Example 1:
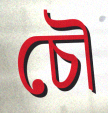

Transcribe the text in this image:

চৌ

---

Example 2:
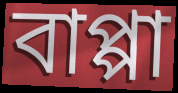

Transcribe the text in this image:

বাপ্পা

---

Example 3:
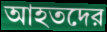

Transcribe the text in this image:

আহতদের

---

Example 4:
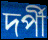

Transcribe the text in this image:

দর্পী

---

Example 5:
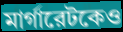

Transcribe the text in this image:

মার্গারেটকেও